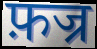
फ़ज्र